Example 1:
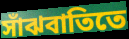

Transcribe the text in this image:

সাঁঝবাতিতে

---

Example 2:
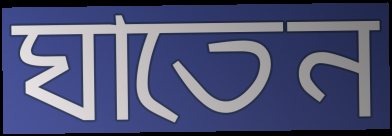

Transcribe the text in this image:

ঘাতেন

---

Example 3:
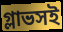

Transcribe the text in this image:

গ্লাভসই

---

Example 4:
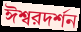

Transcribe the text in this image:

ঈশ্বরদর্শন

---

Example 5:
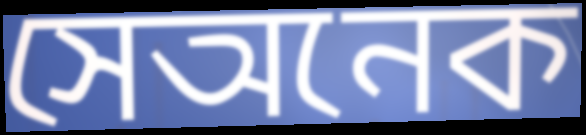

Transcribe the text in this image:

সেঅনেক